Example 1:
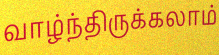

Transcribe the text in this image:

வாழ்ந்திருக்கலாம்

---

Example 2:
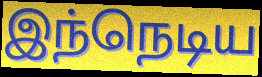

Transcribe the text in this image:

இந்நெடிய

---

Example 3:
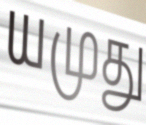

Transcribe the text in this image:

யமுது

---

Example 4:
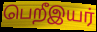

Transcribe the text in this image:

பெறீஇயர்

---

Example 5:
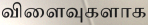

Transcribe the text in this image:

விளைவுகளாக